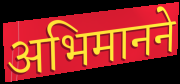
अभिमानने